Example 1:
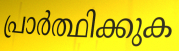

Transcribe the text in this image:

പ്രാർത്ഥിക്കുക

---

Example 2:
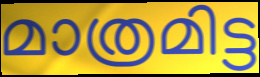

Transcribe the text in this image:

മാത്രമിട്ട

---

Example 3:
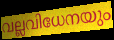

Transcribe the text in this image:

വല്ലവിധേനയും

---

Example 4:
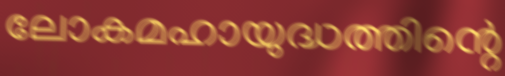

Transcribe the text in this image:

ലോകമഹായുദ്ധത്തിന്റെ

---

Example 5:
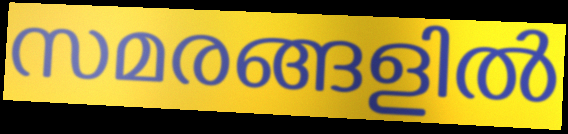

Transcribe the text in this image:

സമരങ്ങളിൽ